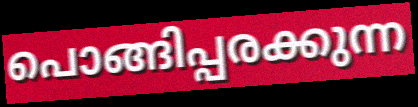
പൊങ്ങിപ്പരക്കുന്ന